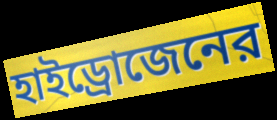
হাইড্রোজেনের